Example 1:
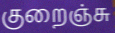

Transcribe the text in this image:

குறைஞ்சு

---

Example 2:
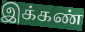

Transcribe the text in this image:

இக்கண்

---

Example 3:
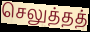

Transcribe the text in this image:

செலுத்தத்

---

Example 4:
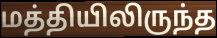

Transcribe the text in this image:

மத்தியிலிருந்த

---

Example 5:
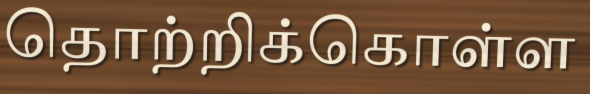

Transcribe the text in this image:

தொற்றிக்கொள்ள